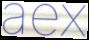
aex